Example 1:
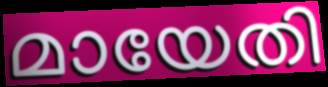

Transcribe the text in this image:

മായേതി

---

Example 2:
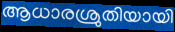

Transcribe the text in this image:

ആധാരശ്രുതിയായി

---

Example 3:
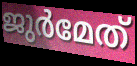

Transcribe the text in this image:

ജുർമേത്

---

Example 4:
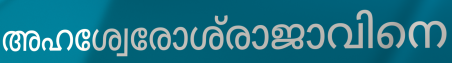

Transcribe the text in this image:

അഹശ്വേരോശ്‌രാജാവിനെ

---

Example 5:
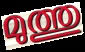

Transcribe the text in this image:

മുത്തു